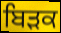
ਬਿੜਕ